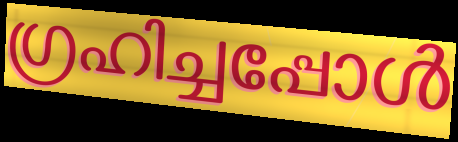
ഗ്രഹിച്ചപ്പോൾ